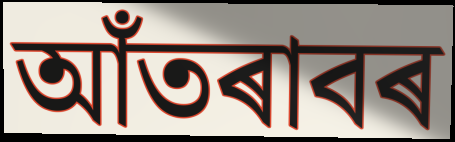
আঁতৰাবৰ